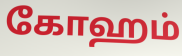
கோஹம்